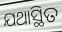
ଯଥାସ୍ଥିତ